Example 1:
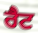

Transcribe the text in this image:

ਰੈਟ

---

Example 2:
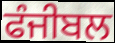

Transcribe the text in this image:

ਫੰਜੀਬਲ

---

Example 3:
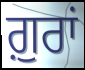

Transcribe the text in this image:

ਗ਼ੁਰਾਂ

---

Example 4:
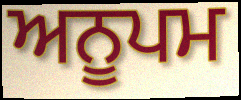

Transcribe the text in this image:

ਅਨੂਪਮ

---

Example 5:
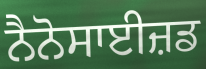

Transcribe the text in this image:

ਨੈਨੋਸਾਈਜ਼ਡ